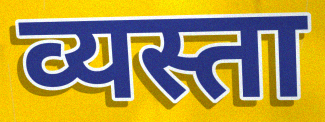
व्यस्ता